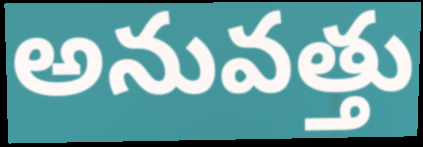
అనువత్తు